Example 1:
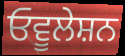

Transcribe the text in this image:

ਓਵੂਲੇਸ਼ਨ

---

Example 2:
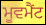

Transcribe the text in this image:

ਮੂਵਮੈਂਟ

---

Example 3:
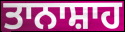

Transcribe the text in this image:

ਤਾਨਾਸ਼ਾਹ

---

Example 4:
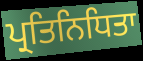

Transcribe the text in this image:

ਪ੍ਰਤਿਨਿਧਿਤਾ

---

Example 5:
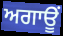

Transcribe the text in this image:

ਅਗਾਊਂ